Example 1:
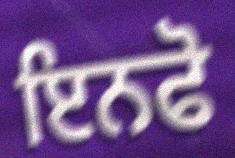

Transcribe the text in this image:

ਇਨਫੋ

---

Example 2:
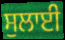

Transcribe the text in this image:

ਸੁਲਾਈ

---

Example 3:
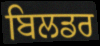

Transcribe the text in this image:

ਬਿਲਡਰ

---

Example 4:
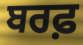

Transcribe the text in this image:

ਬਰਫ਼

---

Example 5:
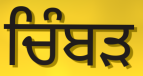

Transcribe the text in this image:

ਚਿੰਬੜ